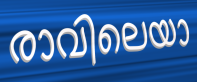
രാവിലെയാ